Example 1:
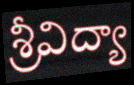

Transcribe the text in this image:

శ్రీవిద్యా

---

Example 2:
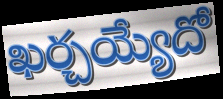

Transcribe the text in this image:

ఖర్చయ్యేదో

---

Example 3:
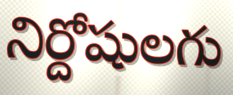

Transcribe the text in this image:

నిర్దోషులగు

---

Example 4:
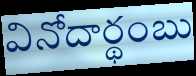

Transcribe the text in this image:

వినోదార్థంబు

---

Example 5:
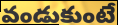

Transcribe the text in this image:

వండుకుంటే